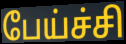
பேய்ச்சி